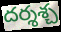
దర్శశ్చ